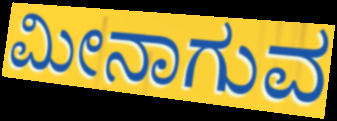
ಮೀನಾಗುವ